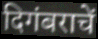
दिगंबराचें